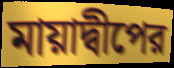
মায়াদ্বীপের